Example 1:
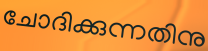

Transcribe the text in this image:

ചോദിക്കുന്നതിനു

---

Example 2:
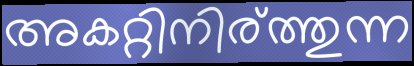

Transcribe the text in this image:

അകറ്റിനിര്ത്തുന്ന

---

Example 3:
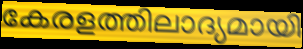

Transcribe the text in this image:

കേരളത്തിലാദ്യമായി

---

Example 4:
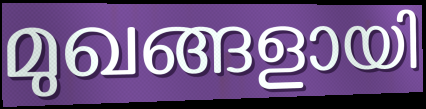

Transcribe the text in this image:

മുഖങ്ങളായി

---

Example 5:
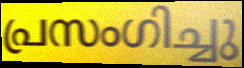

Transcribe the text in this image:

പ്രസംഗിച്ചു